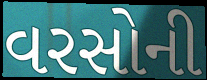
વરસોની